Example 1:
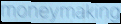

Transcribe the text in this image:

moneymaking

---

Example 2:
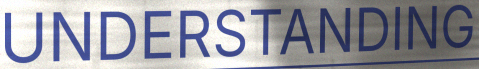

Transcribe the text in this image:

UNDERSTANDING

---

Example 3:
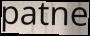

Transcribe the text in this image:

patne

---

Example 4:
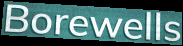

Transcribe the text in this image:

Borewells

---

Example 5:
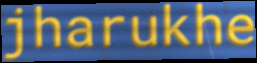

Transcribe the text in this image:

jharukhe